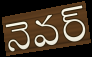
నెవర్